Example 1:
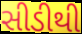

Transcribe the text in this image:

સીડીથી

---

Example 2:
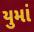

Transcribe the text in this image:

યુમાં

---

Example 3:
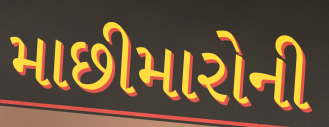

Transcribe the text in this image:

માછીમારોની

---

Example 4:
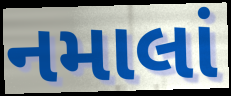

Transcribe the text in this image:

નમાલાં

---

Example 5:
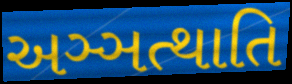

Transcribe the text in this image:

અઞ્ઞત્થાતિ